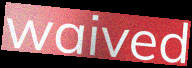
waived